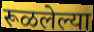
रूळलेल्या